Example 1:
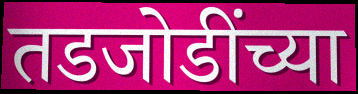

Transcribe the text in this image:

तडजोडींच्या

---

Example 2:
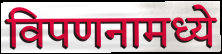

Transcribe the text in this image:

विपणनामध्ये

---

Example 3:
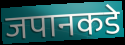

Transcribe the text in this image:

जपानकडे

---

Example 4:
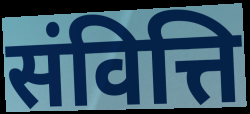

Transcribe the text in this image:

संवित्ति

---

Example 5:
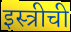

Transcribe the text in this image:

इस्त्रीची